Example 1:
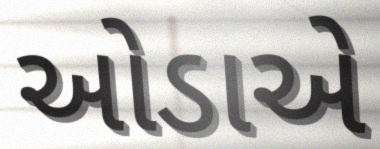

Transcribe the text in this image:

ઓડાએ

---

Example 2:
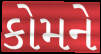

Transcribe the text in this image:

કોમને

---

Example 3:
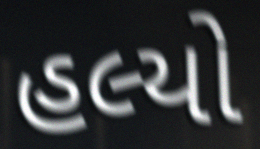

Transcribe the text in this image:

હલ્યો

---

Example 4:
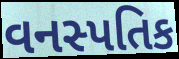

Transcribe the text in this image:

વનસ્પતિક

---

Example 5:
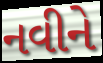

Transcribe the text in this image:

નવીને